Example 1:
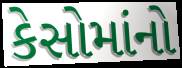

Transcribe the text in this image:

કેસોમાંનો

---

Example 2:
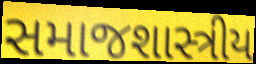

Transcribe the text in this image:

સમાજશાસ્ત્રીય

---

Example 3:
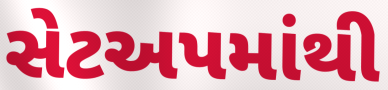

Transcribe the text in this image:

સેટઅપમાંથી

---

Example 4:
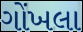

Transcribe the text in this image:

ગોંખલા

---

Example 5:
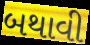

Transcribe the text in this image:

બથાવી